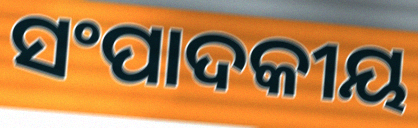
ସଂପାଦକୀୟ